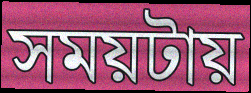
সময়টায়